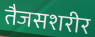
तैजसशरीर